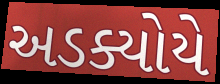
અડક્યોયે